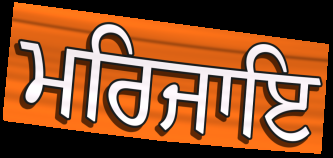
ਮਰਿਜਾਇ